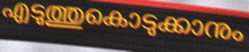
എടുത്തുകൊടുക്കാനും